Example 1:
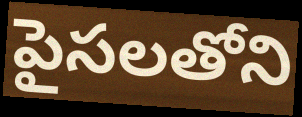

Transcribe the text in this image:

పైసలతోని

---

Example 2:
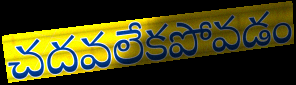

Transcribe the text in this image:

చదవలేకపోవడం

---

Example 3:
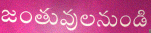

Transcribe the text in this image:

జంతువులనుండి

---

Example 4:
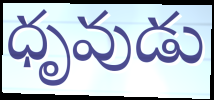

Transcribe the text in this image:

ధృవుడు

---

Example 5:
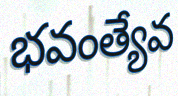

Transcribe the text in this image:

భవంత్యేవ